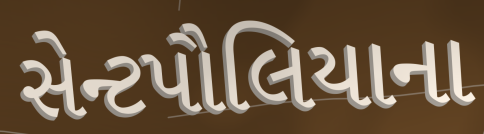
સેન્ટપૌલિયાના